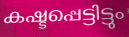
കഷ്ടപ്പെട്ടിട്ടും